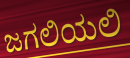
ಜಗಲಿಯಲಿ